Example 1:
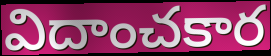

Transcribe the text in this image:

విదాంచకార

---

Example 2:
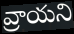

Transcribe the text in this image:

వ్రాయని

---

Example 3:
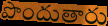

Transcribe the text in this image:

పొందుతారు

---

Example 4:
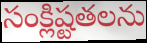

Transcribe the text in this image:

సంక్లిష్టతలను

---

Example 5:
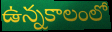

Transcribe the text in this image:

ఉన్నకాలంలో